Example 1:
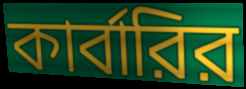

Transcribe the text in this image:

কার্বারির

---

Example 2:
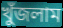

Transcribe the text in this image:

খুঁজলাম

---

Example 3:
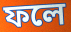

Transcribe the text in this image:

ফলে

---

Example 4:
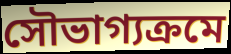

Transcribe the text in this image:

সৌভাগ্যক্রমে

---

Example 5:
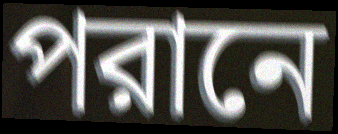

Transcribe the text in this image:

পরানে